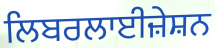
ਲਿਬਰਲਾਈਜ਼ੇਸ਼ਨ